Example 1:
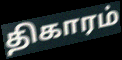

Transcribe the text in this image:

திகாரம்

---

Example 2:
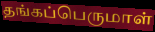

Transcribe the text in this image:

தங்கப்பெருமாள்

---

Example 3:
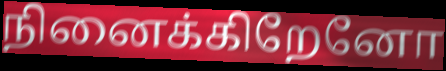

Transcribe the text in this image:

நினைக்கிறேனோ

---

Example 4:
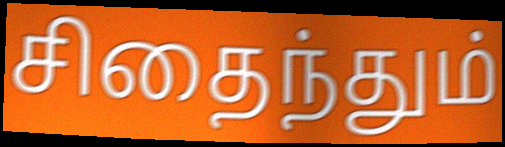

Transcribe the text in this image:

சிதைந்தும்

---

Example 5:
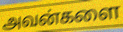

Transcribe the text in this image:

அவன்களை